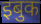
इबुक